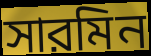
সারমিন